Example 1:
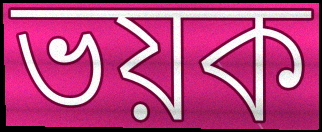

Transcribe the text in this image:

ভয়ক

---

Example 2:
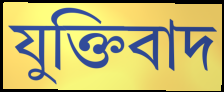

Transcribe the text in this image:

যুক্তিবাদ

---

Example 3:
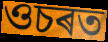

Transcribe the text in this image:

ওচৰত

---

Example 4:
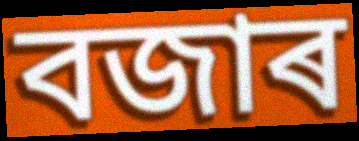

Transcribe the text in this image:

বজাৰ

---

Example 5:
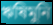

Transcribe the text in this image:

ঋষিমুনি